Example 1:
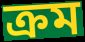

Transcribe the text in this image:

ক্রম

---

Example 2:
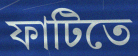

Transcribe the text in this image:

ফাটিতে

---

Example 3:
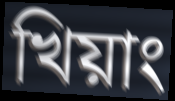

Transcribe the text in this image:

খিয়াং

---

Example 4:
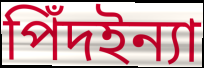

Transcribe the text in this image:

পিঁদইন্যা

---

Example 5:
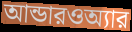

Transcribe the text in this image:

আন্ডারওঅ্যার